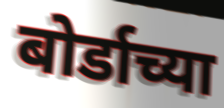
बोर्डाच्या